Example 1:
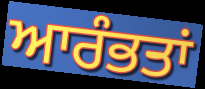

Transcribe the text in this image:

ਆਰੰਭਤਾਂ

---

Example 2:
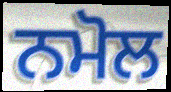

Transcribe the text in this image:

ਨਮੋਲ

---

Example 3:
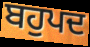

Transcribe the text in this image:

ਬਹੁਪਦ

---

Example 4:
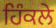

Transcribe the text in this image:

ਹਿੰਕਲੇ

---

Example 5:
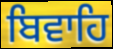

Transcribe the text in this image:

ਬਿਵਾਹਿ